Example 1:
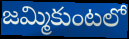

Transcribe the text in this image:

జమ్మికుంటలో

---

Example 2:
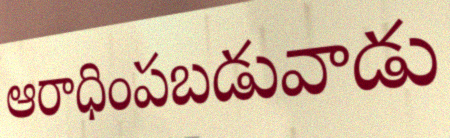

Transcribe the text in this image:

ఆరాధింపబడువాడు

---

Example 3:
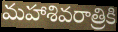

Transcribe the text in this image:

మహాశివరాత్రికి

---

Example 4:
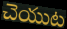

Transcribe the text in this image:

చెయుట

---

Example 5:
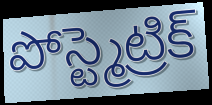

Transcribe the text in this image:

పోస్ట్మెట్రిక్